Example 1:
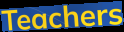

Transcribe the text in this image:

Teachers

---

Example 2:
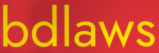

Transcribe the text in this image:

bdlaws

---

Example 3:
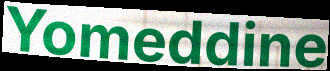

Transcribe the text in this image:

Yomeddine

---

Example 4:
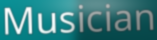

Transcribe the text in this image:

Musician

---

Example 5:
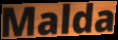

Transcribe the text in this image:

Malda